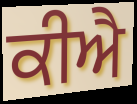
ਕੀਐ